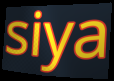
siya